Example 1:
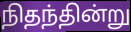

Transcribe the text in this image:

நிதந்தின்று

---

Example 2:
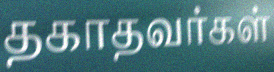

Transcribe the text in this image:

தகாதவர்கள்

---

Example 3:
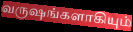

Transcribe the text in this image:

வருஷங்களாகியும்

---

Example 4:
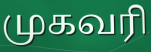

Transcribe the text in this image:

முகவரி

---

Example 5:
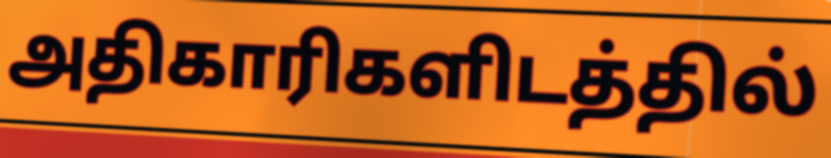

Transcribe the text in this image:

அதிகாரிகளிடத்தில்